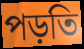
পড়তি